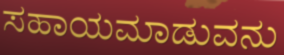
ಸಹಾಯಮಾಡುವನು